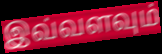
இவ்வளவும்